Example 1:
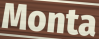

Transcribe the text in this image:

Monta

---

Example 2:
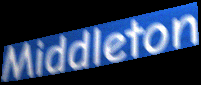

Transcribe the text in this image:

Middleton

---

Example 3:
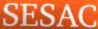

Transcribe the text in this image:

SESAC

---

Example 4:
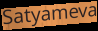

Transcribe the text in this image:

Satyameva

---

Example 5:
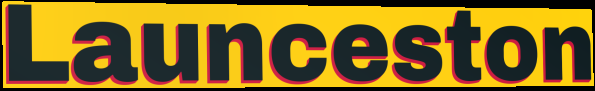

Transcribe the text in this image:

Launceston